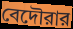
বেদৌরার